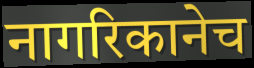
नागरिकानेच